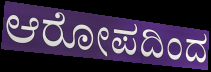
ಆರೋಪದಿಂದ